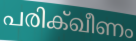
പരിക്ഖീണം